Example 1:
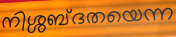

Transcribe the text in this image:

നിശ്ശബ്ദതയെന്ന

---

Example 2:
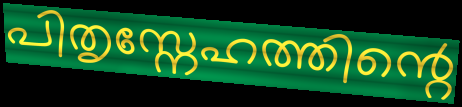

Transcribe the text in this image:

പിതൃസ്നേഹത്തിന്റെ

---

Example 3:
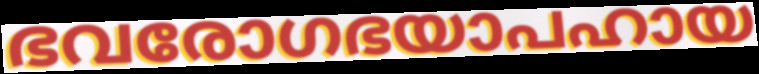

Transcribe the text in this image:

ഭവരോഗഭയാപഹായ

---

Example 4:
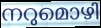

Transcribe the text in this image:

നറുമൊഴി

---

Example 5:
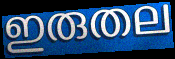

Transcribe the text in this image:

ഇരുതല